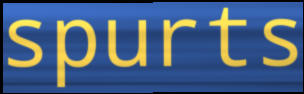
spurts